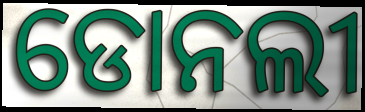
ଡୋନଲୀ